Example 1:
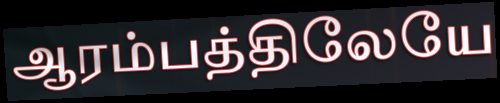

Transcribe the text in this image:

ஆரம்பத்திலேயே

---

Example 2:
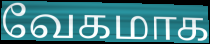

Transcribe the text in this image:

வேகமாக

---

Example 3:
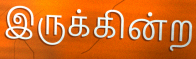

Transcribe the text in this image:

இருக்கின்ற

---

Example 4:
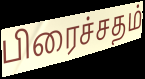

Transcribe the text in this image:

பிரைச்சதம்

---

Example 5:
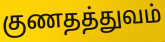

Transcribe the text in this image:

குணதத்துவம்